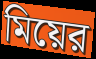
মিয়ের